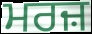
ਮਰਜ਼